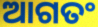
ଆଗତଂ